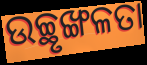
ଉଚ୍ଛୃଙ୍ଖଳତା